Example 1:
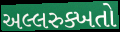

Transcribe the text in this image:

અલ્લરુક્ખતો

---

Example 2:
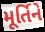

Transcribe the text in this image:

મૂર્તિને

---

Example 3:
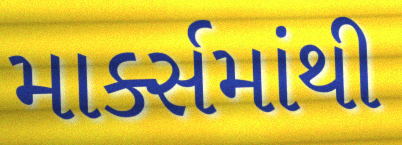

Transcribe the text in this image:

માર્ક્સમાંથી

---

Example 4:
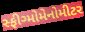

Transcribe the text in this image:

સ્ફીગ્મોમેનોમીટર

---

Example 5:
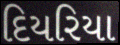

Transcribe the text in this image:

દિયરિયા